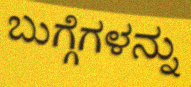
ಬುಗ್ಗೆಗಳನ್ನು